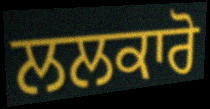
ਲਲਕਾਰੋ